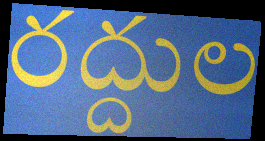
రద్దుల